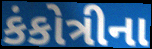
કંકોત્રીના